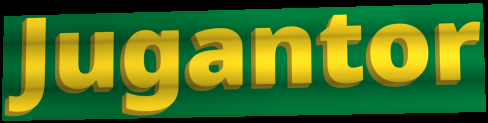
Jugantor